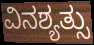
ವಿನಶ್ಯತ್ಸು